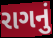
રાગનું